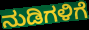
ನುಡಿಗಳಿಗೆ